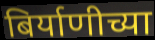
बिर्याणीच्या